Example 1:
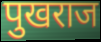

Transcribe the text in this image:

पुखराज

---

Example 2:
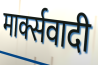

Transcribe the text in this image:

मार्क्सवादी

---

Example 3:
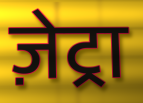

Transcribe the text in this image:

ज़ेट्रा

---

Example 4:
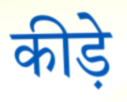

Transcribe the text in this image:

कीड़े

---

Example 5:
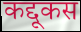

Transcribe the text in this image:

कद्दूकस